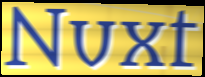
Nuxt